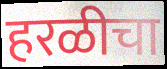
हरळीचा